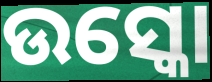
ଉସ୍କୋ